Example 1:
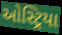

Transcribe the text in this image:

ઓસ્ટ્રિયા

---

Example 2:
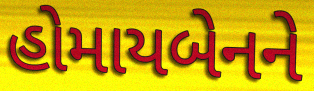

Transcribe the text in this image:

હોમાયબેનને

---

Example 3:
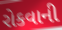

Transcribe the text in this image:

રોકવાની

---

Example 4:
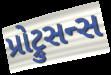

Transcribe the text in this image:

પ્રોટ્રુસન્સ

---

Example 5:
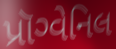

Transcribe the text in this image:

પ્રૉગ્વેનિલ